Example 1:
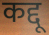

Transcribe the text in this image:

कद्दू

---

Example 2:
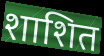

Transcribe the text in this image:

शाशित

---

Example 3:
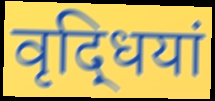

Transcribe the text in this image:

वृद्धियां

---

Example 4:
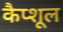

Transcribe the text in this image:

कैप्शूल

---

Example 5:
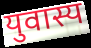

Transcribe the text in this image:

युवास्य